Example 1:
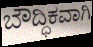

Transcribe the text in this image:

ಬೌದ್ಧಿಕವಾಗಿ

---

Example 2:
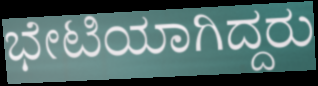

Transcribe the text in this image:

ಭೇಟಿಯಾಗಿದ್ದರು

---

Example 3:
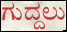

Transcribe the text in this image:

ಗುದ್ದಲು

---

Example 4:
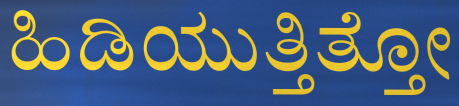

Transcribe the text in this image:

ಹಿಡಿಯುತ್ತಿತ್ತೋ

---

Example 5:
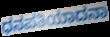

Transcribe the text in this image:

ಧನಪತಿಯಾದನಾ